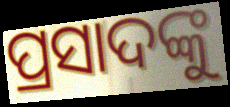
ପ୍ରସାଦଙ୍କୁ